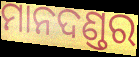
ମାନଦଣ୍ଡର